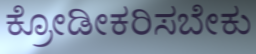
ಕ್ರೋಡೀಕರಿಸಬೇಕು